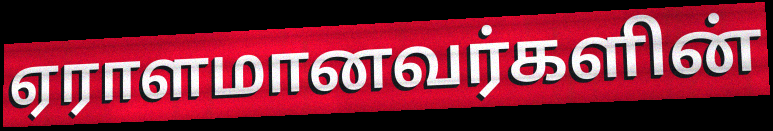
ஏராளமானவர்களின்